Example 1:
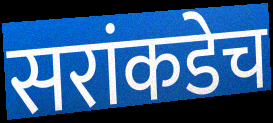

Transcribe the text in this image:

सरांकडेच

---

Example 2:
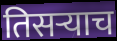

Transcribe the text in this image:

तिसर्‍याच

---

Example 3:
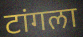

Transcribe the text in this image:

टांगला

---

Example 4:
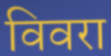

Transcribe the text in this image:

विवरा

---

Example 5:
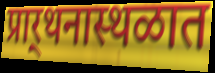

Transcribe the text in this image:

प्रार्थनास्थळात